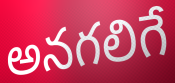
అనగలిగే